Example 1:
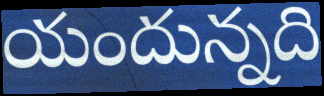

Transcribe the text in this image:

యందున్నది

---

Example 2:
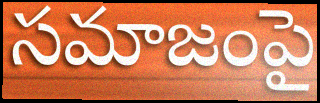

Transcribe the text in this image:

సమాజంపై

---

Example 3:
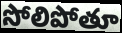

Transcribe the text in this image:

సోలిపోతూ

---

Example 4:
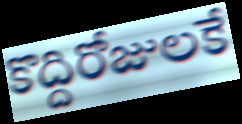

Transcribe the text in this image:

కొద్దిరోజులకే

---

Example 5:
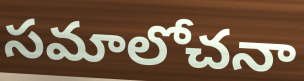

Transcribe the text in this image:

సమాలోచనా